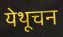
येथूचन